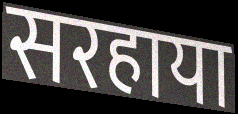
सरहाया